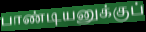
பாண்டியனுக்குப்